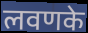
लवणके